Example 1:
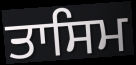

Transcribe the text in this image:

ਤਾਸਿਮ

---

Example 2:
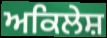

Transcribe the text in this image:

ਅਕਿਲੇਸ਼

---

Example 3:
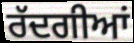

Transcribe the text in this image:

ਰੱਦਗੀਆਂ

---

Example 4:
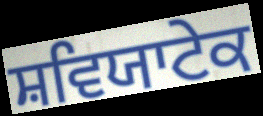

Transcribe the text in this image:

ਸ਼ਵਿਯਾਟੇਕ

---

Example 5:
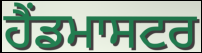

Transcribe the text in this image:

ਹੈਂਡਮਾਸਟਰ